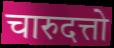
चारुदत्तो